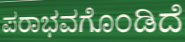
ಪರಾಭವಗೊಂಡಿದೆ